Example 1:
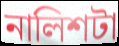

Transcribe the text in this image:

নালিশটা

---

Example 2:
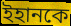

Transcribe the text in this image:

ইহানকে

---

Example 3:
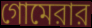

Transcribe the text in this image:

গোমেরার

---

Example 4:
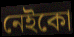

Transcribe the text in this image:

নেইকো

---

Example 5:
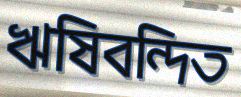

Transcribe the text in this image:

ঋষিবন্দিত